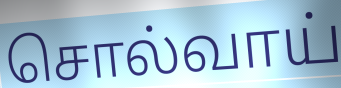
சொல்வாய்